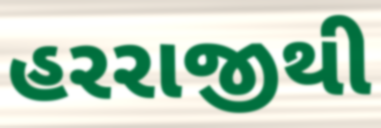
હરરાજીથી